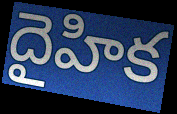
దైహిక